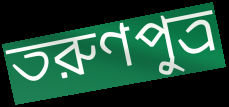
তরুণপুত্র